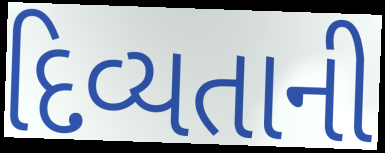
દિવ્યતાની